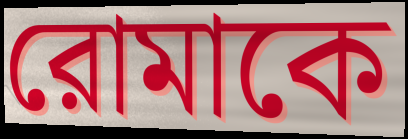
রোমাকে